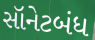
સૉનેટબંધ